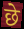
छे